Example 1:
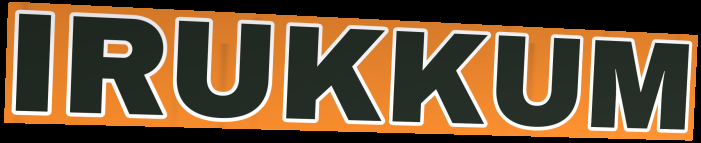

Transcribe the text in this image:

IRUKKUM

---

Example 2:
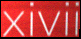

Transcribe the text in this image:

xivii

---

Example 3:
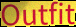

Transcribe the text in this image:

Outfit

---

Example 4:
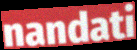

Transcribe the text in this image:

nandati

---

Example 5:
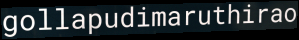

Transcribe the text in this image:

gollapudimaruthirao